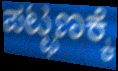
ಪಟ್ಟಣಕ್ಕೆ